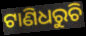
ଟାଣିଧରୁଚି